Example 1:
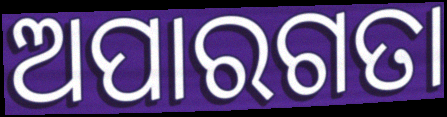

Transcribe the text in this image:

ଅପାରଗତା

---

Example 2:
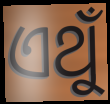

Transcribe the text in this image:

ଏଥୁଁ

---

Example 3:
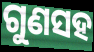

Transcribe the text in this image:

ଗୁଣସହ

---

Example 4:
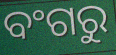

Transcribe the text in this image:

ବଂଗରୁ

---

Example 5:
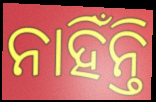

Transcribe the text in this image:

ନାହିଁନ୍ତି